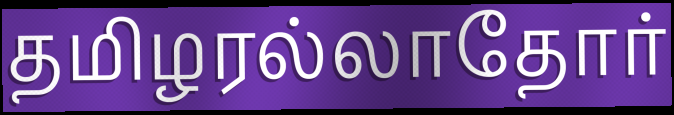
தமிழரல்லாதோர்